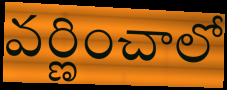
వర్ణించాలో